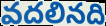
వదలినది